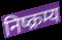
निष्क्रम्य